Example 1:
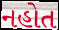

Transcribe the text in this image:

નહોત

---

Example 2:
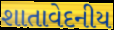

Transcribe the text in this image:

શાતાવેદનીય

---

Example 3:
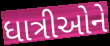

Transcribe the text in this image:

ધાત્રીઓને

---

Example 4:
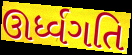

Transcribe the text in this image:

ઊર્ધ્વગતિ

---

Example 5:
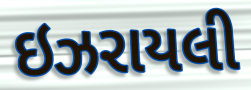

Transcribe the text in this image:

ઇઝરાયલી